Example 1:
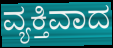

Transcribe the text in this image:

ವ್ಯಕ್ತಿವಾದ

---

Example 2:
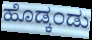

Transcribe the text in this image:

ಹೊಡ್ಕಂಡು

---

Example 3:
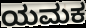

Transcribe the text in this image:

ಯಮಕ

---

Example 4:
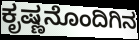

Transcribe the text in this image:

ಕೃಷ್ಣನೊಂದಿಗಿನ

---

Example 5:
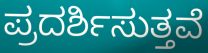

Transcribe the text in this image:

ಪ್ರದರ್ಶಿಸುತ್ತವೆ